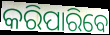
କରିପାରିବେ